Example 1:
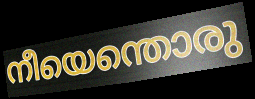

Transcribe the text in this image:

നീയെന്തൊരു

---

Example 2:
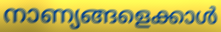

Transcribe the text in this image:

നാണ്യങ്ങളെക്കാൾ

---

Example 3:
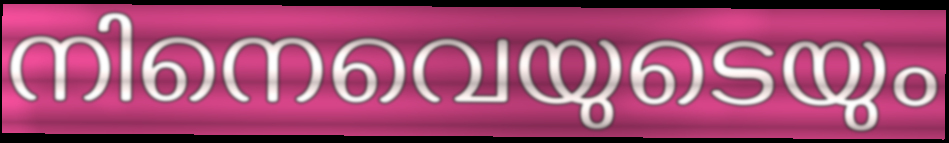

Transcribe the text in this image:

നിനെവെയുടെയും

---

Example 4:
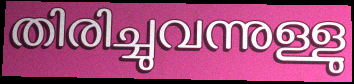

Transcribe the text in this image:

തിരിച്ചുവന്നുള്ളു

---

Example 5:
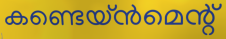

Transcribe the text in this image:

കണ്ടെയ്ൻമെന്റ്